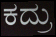
ಕದ್ರು